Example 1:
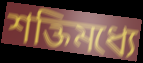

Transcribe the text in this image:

শক্তিমধ্যে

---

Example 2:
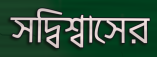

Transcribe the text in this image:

সদ্বিশ্বাসের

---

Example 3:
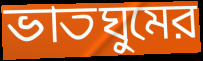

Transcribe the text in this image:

ভাতঘুমের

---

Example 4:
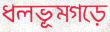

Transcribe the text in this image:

ধলভূমগড়ে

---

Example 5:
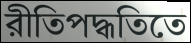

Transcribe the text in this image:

রীতিপদ্ধতিতে